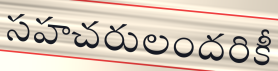
సహచరులందరికీ